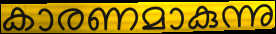
കാരണമാകുന്നു